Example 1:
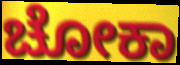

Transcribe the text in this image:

ಚೋಕಾ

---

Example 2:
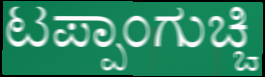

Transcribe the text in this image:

ಟಪ್ಪಾಂಗುಚ್ಚಿ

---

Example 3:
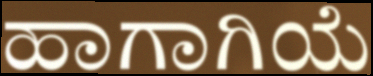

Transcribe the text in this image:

ಹಾಗಾಗಿಯೆ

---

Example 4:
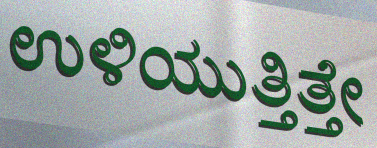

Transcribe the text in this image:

ಉಳಿಯುತ್ತಿತ್ತೇ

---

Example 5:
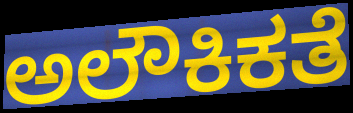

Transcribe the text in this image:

ಅಲೌಕಿಕತೆ